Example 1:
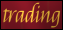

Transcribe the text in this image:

trading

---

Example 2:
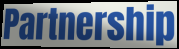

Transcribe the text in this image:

Partnership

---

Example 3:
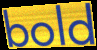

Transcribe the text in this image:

bold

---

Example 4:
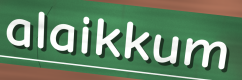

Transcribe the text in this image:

alaikkum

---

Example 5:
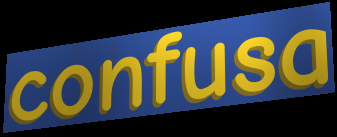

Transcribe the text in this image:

confusa